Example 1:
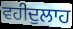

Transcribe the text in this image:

ਵਹੀਦੁਲਾਹ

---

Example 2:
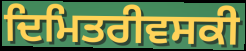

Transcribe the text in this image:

ਦਿਮਿਤਰੀਵਸਕੀ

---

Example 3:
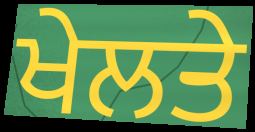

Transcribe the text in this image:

ਖੇਲਤੇ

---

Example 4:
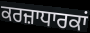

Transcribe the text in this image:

ਕਰਜ਼ਾਧਾਰਕਾਂ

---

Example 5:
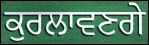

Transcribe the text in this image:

ਕੁਰਲਾਵਣਗੇ